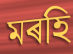
মৰহি